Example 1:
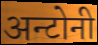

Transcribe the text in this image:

अन्टोनी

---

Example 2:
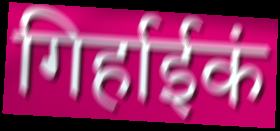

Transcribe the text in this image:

गिर्हाईकं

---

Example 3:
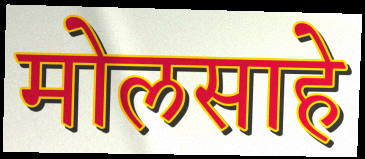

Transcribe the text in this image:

मोलसाहे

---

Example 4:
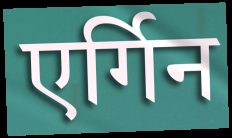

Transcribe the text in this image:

एर्गिन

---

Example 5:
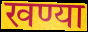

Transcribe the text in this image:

खण्या